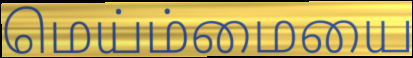
மெய்ம்மையை